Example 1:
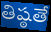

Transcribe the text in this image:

తిష్ఠతే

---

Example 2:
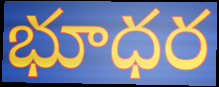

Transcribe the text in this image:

భూధర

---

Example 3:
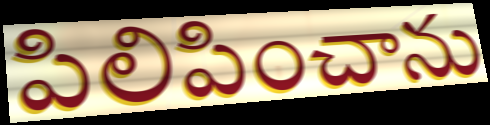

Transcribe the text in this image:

పిలిపించాను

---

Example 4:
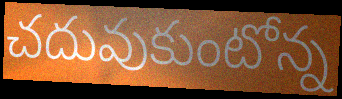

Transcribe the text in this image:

చదువుకుంటోన్న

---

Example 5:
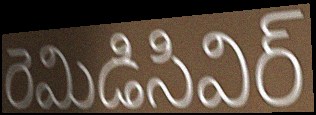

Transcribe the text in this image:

రెమిడిసివిర్